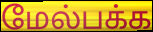
மேல்பக்க